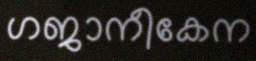
ഗജാനീകേന